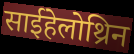
साईहेलोथ्रिन